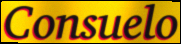
Consuelo